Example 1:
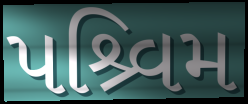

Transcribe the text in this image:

પશ્ર્વિમ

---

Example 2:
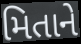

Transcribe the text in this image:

મિતાને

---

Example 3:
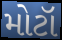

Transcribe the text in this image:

મોટૉ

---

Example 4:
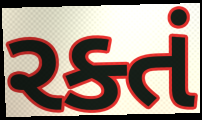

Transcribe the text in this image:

રક્તં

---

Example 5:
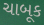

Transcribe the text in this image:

ચાબૂક